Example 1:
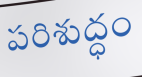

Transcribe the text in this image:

పరిశుద్ధం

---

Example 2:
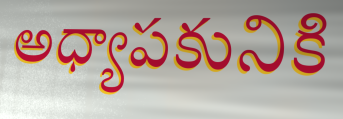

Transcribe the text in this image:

అధ్యాపకునికి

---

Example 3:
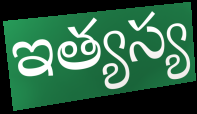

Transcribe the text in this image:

ఇత్యస్య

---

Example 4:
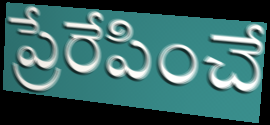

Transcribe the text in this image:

ప్రేరేపించే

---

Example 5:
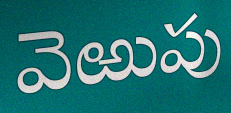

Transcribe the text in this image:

వెఱుపు